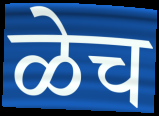
ळेच